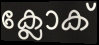
ക്ലോക്